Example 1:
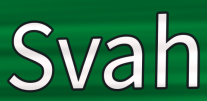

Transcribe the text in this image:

Svah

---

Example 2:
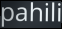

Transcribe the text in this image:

pahili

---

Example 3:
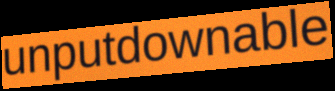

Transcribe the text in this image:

unputdownable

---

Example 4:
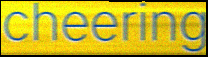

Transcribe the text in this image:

cheering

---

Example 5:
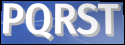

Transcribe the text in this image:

PQRST